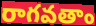
రాగవతాం